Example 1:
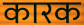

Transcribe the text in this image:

कारक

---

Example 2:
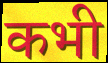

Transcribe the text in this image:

कभी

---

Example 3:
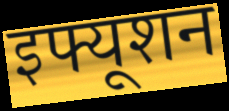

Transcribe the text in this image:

इफ्यूशन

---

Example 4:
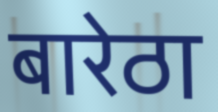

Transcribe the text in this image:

बारेठा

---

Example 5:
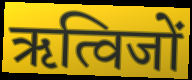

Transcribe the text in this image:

ऋत्विजों